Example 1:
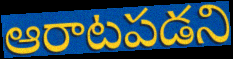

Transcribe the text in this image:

ఆరాటపడని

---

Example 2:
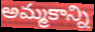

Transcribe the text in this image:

అమ్మకాన్ని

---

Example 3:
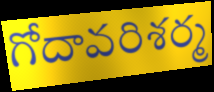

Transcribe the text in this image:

గోదావరిశర్మ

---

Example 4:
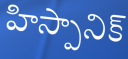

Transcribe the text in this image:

హిస్పానిక్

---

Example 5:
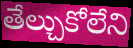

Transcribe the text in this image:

తేల్చుకోలేని